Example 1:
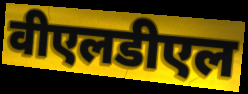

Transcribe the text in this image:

वीएलडीएल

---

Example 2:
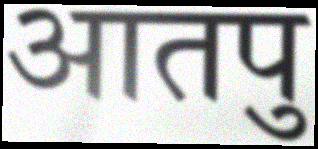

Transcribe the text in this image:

आतपु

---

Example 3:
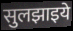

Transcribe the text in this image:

सुलझाइये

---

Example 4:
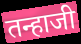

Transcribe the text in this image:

तन्हाजी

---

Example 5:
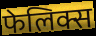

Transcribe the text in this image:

फेलिक्स